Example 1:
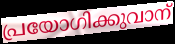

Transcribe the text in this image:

പ്രയോഗിക്കുവാന്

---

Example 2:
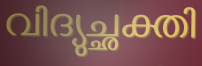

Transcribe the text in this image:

വിദ്യുച്ഛക്തി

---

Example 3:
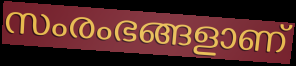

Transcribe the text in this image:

സംരംഭങ്ങളാണ്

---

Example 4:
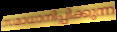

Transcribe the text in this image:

സമാധാനിപ്പിക്കുന്ന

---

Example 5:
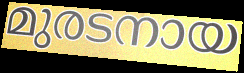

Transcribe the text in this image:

മുരടനായ